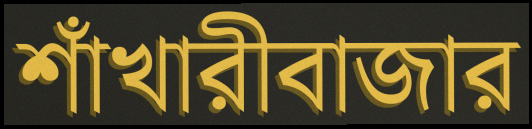
শাঁখারীবাজার